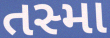
તસ્મા